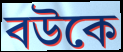
বউকে